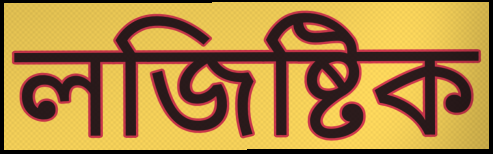
লজিষ্টিক